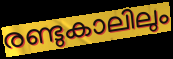
രണ്ടുകാലിലും